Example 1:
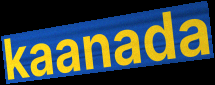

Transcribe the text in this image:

kaanada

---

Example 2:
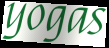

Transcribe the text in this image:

yogas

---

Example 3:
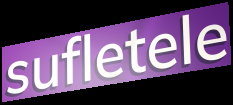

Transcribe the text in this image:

sufletele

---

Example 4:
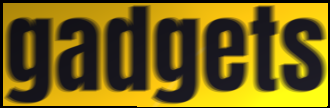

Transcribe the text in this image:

gadgets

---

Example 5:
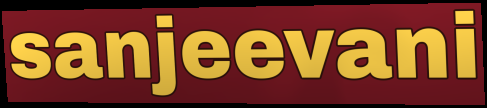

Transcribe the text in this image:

sanjeevani